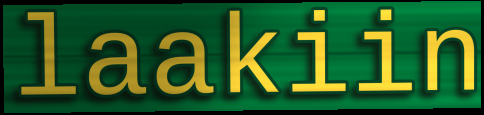
laakiin